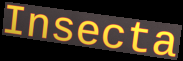
Insecta